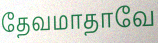
தேவமாதாவே